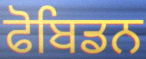
ਫੋਬਿਡਨ